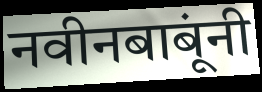
नवीनबाबूंनी